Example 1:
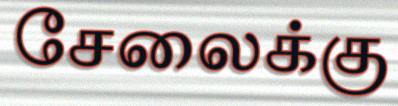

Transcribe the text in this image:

சேலைக்கு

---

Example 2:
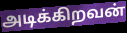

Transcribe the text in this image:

அடிக்கிறவன்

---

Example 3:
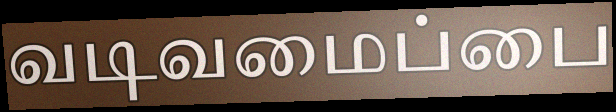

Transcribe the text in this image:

வடிவமைப்பை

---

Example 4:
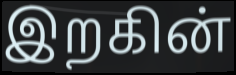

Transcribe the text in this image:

இறகின்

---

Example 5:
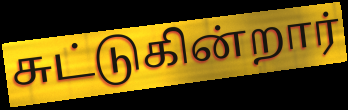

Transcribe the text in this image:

சுட்டுகின்றார்